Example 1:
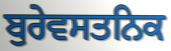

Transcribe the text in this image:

ਬੁਰੇਵਸਤਨਿਕ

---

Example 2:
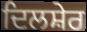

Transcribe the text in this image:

ਦਿਲਸ਼ੇਰ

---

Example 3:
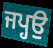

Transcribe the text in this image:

ਜਪ੍ਹਉ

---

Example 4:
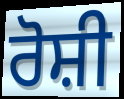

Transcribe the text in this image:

ਰੋਸ਼ੀ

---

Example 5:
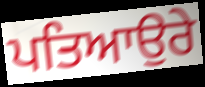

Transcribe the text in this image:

ਪਤਿਆਉਰੇ